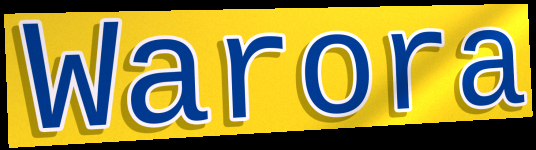
Warora